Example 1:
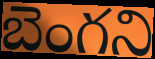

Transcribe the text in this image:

బెంగని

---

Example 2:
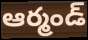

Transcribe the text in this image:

ఆర్మండ్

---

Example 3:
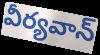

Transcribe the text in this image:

వీర్యవాన్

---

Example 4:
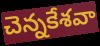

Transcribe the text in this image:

చెన్నకేశవా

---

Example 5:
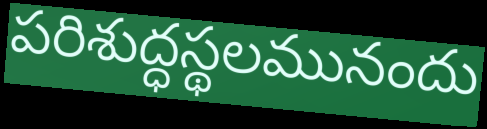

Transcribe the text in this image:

పరిశుద్ధస్థలమునందు